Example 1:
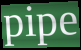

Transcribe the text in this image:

pipe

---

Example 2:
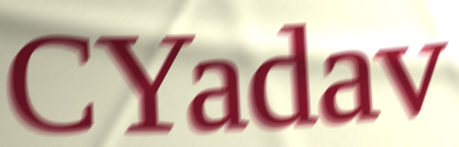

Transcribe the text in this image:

CYadav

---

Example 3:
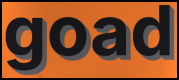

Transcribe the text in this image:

goad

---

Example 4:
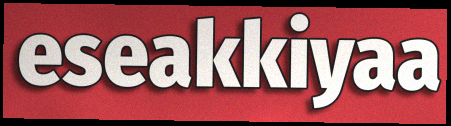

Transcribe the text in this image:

eseakkiyaa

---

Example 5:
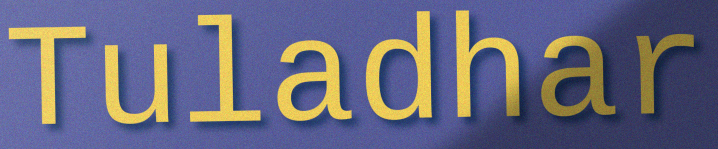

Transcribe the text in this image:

Tuladhar